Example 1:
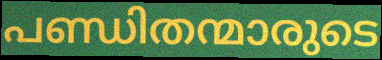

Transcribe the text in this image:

പണ്ഡിതന്മാരുടെ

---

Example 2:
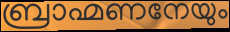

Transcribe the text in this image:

ബ്രാഹ്മണനേയും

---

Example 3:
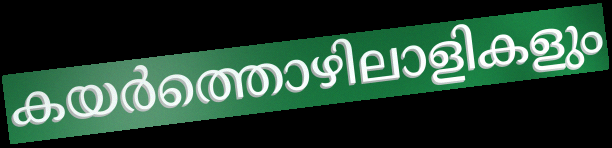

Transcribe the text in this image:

കയർത്തൊഴിലാളികളും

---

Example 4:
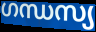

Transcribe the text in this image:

ഗന്ധസ്യ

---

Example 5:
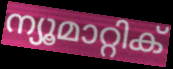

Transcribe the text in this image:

ന്യൂമാറ്റിക്